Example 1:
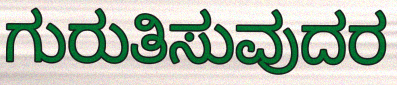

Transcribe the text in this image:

ಗುರುತಿಸುವುದರ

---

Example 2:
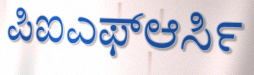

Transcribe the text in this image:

ಪಿಐಎಫ್ಆರ್ಸಿ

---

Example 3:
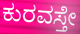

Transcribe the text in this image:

ಕುರವಸ್ತೇ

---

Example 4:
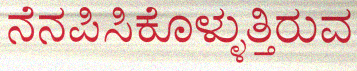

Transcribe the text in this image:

ನೆನಪಿಸಿಕೊಳ್ಳುತ್ತಿರುವ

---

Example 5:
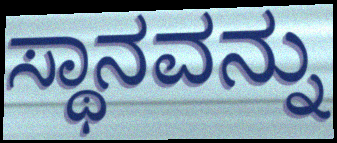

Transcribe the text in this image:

ಸ್ಥಾನವನ್ನು